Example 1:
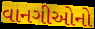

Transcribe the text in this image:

વાનગીઓનો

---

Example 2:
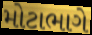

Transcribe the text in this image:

મોટાભાગે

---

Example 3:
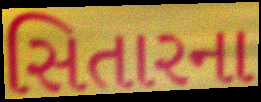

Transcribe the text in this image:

સિતારના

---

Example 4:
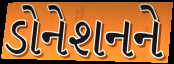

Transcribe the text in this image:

ડોનેશનને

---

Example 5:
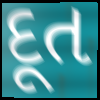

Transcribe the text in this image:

દૂત